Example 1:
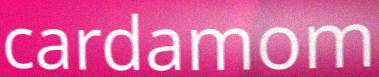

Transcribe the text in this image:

cardamom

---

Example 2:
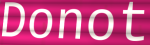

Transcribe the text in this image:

Donot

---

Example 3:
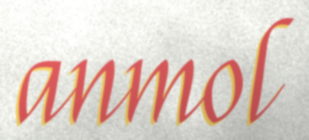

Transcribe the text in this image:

anmol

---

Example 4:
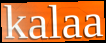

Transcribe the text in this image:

kalaa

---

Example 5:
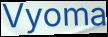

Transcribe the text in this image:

Vyoma